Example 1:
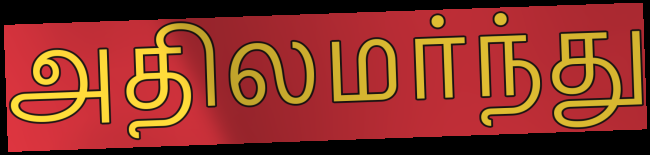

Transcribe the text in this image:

அதிலமர்ந்து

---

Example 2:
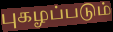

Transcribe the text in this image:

புகழப்படும்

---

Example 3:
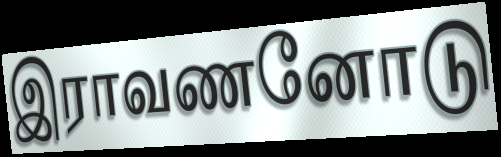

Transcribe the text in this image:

இராவணனோடு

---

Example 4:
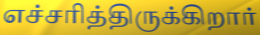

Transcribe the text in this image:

எச்சரித்திருக்கிறார்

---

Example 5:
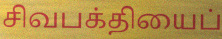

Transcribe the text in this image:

சிவபக்தியைப்